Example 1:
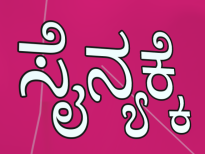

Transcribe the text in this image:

ಸೈನ್ಯಕ್ಕೆ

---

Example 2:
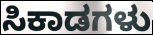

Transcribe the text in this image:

ಸಿಕಾಡಗಳು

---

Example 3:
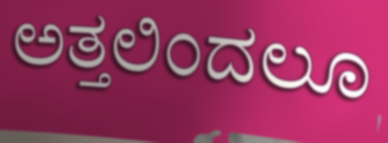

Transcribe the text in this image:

ಅತ್ತಲಿಂದಲೂ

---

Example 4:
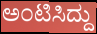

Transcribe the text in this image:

ಅಂಟಿಸಿದ್ದು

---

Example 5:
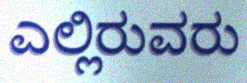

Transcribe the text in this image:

ಎಲ್ಲಿರುವರು